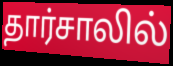
தார்சாலில்